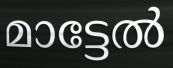
മാട്ടേൽ